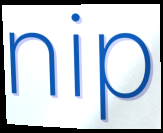
nip